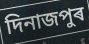
দিনাজপুৰ